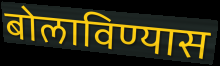
बोलाविण्यास